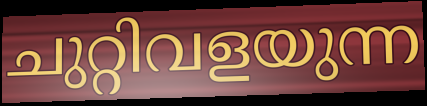
ചുറ്റിവളയുന്ന